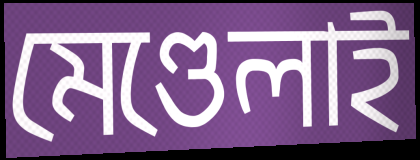
মেণ্ডেলাই